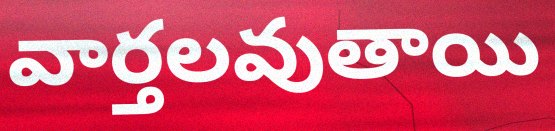
వార్తలవుతాయి